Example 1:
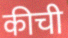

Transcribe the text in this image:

कीची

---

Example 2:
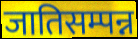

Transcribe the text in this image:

जातिसम्पन्न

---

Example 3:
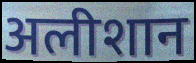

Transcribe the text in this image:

अलीशान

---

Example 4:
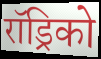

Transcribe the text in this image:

रॉड्रिको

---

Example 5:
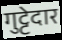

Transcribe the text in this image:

गुट्टेदार